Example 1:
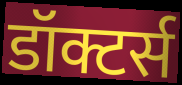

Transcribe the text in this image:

डॉक्टर्स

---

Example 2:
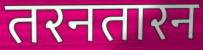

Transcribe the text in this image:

तरनतारन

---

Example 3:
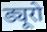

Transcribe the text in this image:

ड्यूरो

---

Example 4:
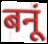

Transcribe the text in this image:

बनूं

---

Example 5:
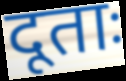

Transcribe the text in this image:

दूताः